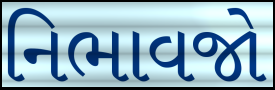
નિભાવજો